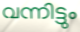
വന്നിട്ടും